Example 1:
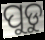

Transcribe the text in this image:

ପୁଡୁ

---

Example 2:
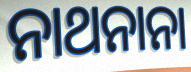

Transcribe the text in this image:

ନାଥନାନା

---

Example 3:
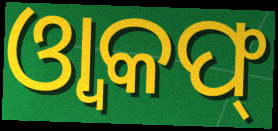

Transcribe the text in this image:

ଓ୍ଵାକଫ୍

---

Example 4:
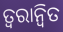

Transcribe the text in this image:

ତ୍ବରାନ୍ବିତ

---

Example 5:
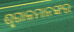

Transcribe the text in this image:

ଶୃଗାଳମାନଙ୍କର